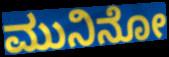
ಮುನಿನೋ